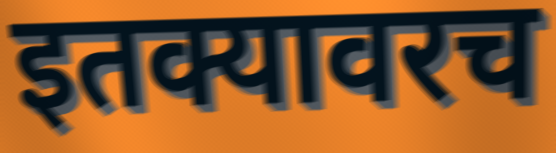
इतक्यावरच